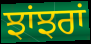
ਝਾਂਝਰਾਂ